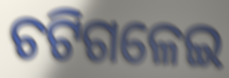
ଚଟିଗଳେଇ